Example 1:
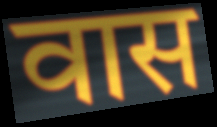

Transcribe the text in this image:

वास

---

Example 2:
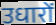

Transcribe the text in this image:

उधारों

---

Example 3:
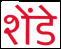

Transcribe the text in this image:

शेंडे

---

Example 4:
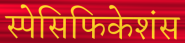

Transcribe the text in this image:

स्पेसिफिकेशंस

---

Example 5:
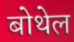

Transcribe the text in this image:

बोथेल